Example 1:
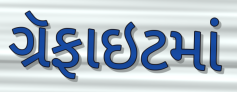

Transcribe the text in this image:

ગ્રૅફાઇટમાં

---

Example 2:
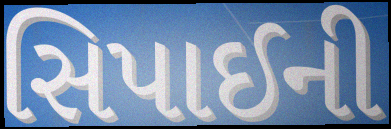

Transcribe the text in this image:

સિપાઈની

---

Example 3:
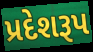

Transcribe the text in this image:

પ્રદેશરૂપ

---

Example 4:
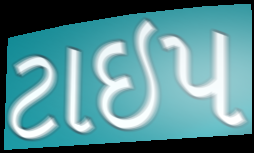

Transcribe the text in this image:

ટાઇપ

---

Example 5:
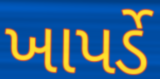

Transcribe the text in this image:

ખાપર્ડે